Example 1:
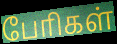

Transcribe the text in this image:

பேரிகள்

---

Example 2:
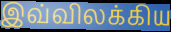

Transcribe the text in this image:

இவ்விலக்கிய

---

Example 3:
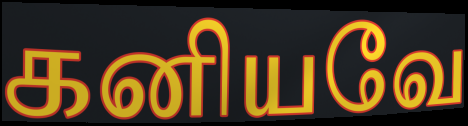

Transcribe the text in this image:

கனியவே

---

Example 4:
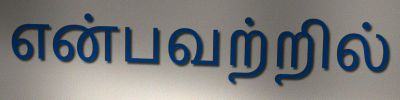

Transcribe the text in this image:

என்பவற்றில்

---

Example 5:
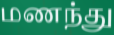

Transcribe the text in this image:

மணந்து